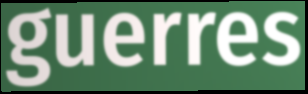
guerres